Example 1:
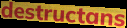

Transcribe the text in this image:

destructans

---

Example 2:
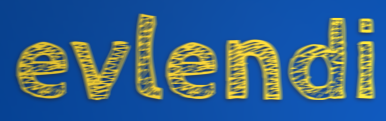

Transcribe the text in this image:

evlendi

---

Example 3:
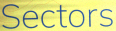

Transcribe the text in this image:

Sectors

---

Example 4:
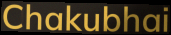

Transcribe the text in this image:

Chakubhai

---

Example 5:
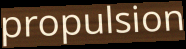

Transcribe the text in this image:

propulsion